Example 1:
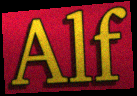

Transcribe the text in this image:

Alf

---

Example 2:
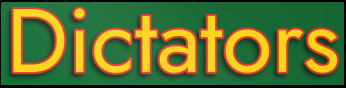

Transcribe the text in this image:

Dictators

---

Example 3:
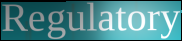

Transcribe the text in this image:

Regulatory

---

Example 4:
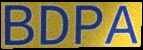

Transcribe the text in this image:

BDPA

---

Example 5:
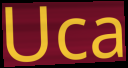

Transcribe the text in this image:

Uca